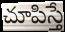
చూపిస్తే